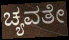
ಚ್ಯವತೇ